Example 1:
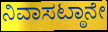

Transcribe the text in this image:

ನಿವಾಸಟ್ಠಾನೇ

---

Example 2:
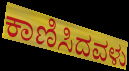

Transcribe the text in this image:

ಕಾಣಿಸಿದವಳು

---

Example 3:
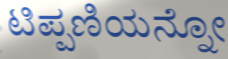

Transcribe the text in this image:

ಟಿಪ್ಪಣಿಯನ್ನೋ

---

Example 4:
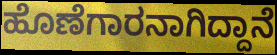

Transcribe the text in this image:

ಹೊಣೆಗಾರನಾಗಿದ್ದಾನೆ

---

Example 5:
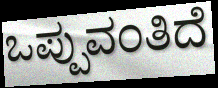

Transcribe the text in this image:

ಒಪ್ಪುವಂತಿದೆ